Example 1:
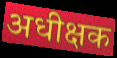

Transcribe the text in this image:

अधीक्षक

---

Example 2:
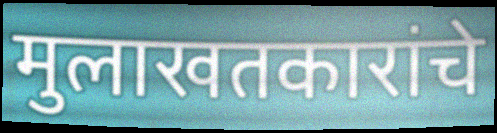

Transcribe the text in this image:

मुलाखतकारांचे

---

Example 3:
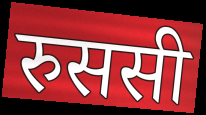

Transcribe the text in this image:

रुससी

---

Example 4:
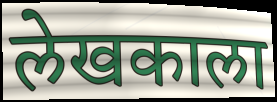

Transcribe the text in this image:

लेखकाला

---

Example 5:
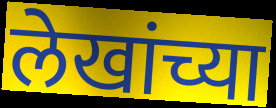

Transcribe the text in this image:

लेखांच्या